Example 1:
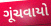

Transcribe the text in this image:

ગૂંચવાયો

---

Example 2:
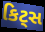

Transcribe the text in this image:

કિટ્સ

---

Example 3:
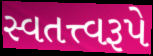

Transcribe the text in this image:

સ્વતત્ત્વરૂપે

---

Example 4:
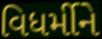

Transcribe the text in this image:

વિધર્મીને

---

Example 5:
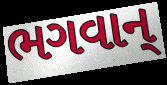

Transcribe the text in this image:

ભગવાન્